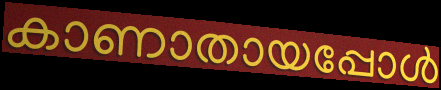
കാണാതായപ്പോൾ